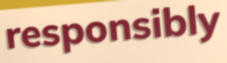
responsibly